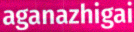
aganazhigai